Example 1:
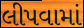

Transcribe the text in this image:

લીપવામાં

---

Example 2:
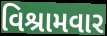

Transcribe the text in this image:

વિશ્રામવાર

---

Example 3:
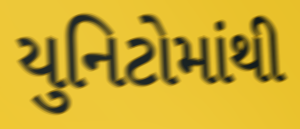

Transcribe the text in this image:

યુનિટોમાંથી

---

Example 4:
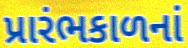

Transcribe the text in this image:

પ્રારંભકાળનાં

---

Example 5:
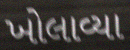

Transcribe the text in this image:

ખોલાવ્યા